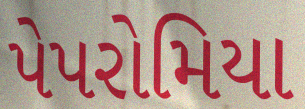
પેપરોમિયા